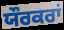
ਯੌਰਕਰਾਂ